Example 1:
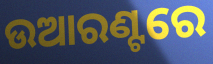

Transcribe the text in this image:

ଉଆରଣ୍ଟରେ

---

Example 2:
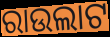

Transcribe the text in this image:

ରାଉଲାଟ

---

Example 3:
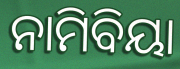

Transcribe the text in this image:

ନାମିବିୟା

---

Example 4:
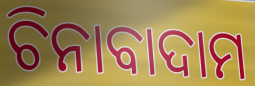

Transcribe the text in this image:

ଚିନାବାଦାମ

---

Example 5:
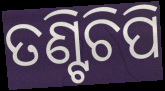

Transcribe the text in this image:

ତଣ୍ଟିଚିପି